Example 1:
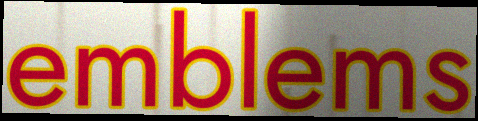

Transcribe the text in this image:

emblems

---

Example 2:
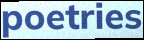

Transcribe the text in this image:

poetries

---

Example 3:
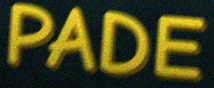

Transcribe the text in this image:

PADE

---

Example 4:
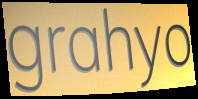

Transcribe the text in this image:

grahyo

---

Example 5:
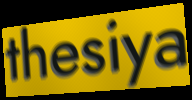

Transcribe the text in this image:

thesiya